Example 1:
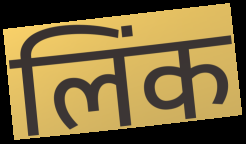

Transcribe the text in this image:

लिंक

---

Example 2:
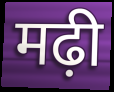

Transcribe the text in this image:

मढ़ी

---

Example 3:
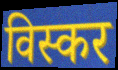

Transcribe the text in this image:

विस्कर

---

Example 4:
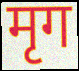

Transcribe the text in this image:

मृग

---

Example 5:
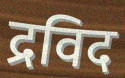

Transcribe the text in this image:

द्रविद